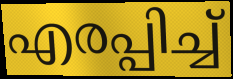
എരപ്പിച്ച്